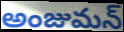
అంజుమన్